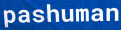
pashuman